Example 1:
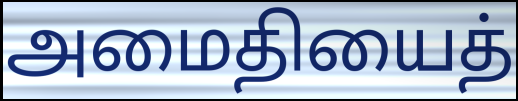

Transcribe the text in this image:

அமைதியைத்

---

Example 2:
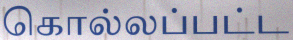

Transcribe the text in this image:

கொல்லப்பட்ட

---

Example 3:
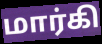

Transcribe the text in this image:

மார்கி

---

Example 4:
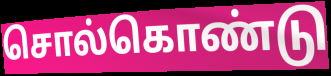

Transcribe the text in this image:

சொல்கொண்டு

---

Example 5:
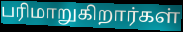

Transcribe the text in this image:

பரிமாறுகிறார்கள்